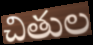
చితుల